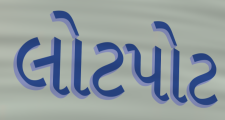
લોટપોટ